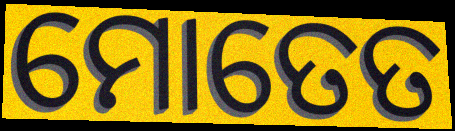
ମୋତେତ